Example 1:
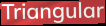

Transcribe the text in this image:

Triangular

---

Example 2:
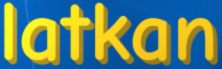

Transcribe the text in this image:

latkan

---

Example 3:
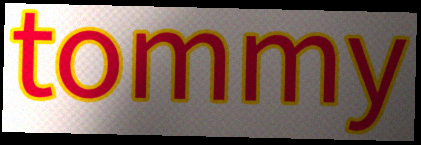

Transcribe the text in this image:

tommy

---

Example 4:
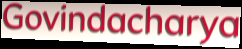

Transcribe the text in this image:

Govindacharya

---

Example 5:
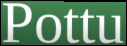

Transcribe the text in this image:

Pottu